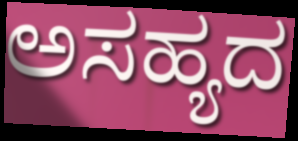
ಅಸಹ್ಯದ